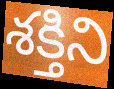
శక్తిని